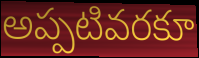
అప్పటివరకూ